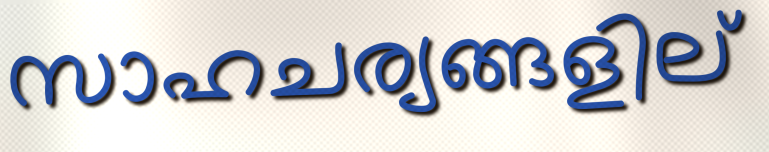
സാഹചര്യങ്ങളില്